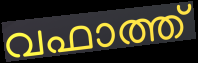
വഫാത്ത്